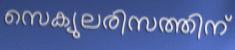
സെക്യുലരിസത്തിന്